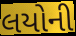
લયોની